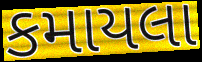
કમાયલા